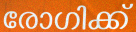
രോഗിക്ക്